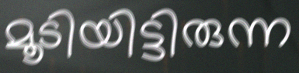
മൂടിയിട്ടിരുന്ന